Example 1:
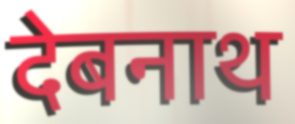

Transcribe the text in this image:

देबनाथ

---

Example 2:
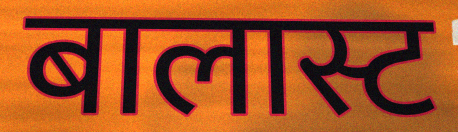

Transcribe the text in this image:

बालास्ट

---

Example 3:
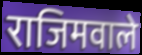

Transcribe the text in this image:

राजिमवाले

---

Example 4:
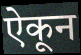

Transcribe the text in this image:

ऐकून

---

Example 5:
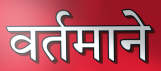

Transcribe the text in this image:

वर्तमाने